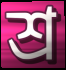
শ্র